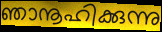
ഞാനൂഹിക്കുന്നു